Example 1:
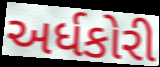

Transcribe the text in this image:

અર્ધકોરી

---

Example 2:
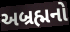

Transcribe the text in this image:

અબ્રહ્મનો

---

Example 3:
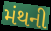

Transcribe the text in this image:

મંથની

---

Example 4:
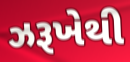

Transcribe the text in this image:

ઝરૂખેથી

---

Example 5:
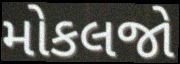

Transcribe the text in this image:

મોકલજો